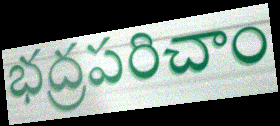
భద్రపరిచాం